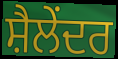
ਸ਼ੈਲੇਂਦਰ